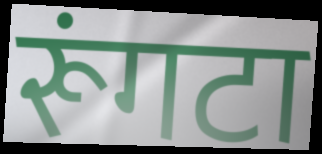
रूंगटा